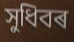
সুধিবৰ